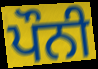
ਪੌਨੀ